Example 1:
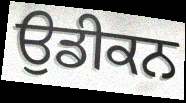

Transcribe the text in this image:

ਉਡੀਕਨ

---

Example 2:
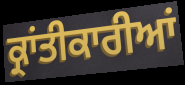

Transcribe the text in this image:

ਕ੍ਰਾਂਤੀਕਾਰੀਆਂ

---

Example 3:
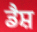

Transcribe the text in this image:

ਡੈਸ਼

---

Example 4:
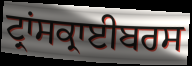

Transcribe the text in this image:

ਟ੍ਰਾਂਸਕ੍ਰਾਈਬਰਸ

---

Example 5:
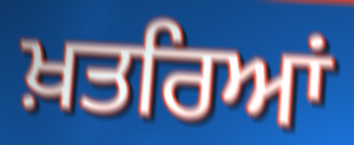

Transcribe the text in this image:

ਖ਼ਤਰਿਆਂ